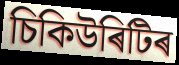
চিকিউৰিটিৰ